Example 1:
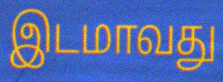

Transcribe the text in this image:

இடமாவது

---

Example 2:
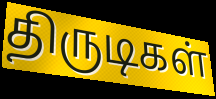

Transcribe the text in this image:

திருடிகள்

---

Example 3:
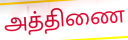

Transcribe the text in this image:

அத்திணை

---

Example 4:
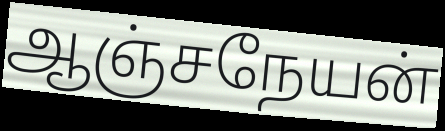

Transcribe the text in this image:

ஆஞ்சநேயன்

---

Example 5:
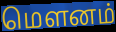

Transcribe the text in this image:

மௌனம்